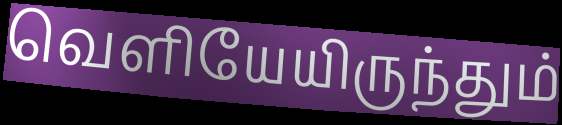
வெளியேயிருந்தும்